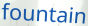
fountain